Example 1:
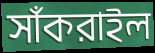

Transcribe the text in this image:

সাঁকরাইল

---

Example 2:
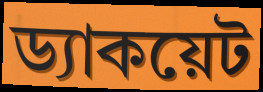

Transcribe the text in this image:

ড্যাকয়েট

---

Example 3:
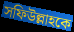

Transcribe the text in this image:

সফিউল্লাহকে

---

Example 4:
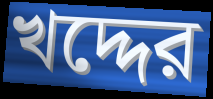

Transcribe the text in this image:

খদ্দের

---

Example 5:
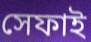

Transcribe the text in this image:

সেফাই